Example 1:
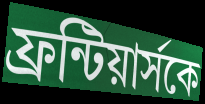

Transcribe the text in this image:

ফ্রন্টিয়ার্সকে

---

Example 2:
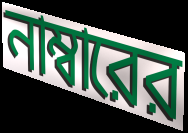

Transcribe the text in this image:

নাম্বারের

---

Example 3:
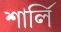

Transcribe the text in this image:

শার্লি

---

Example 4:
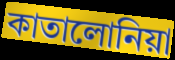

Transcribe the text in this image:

কাতালোনিয়া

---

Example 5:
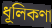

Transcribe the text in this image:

ধূলিকণা